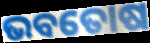
ଭବତୋଷ